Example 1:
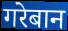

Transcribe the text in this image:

गरेबान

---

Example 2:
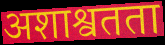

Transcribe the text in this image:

अशाश्वतता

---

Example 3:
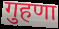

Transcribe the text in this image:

गुहणा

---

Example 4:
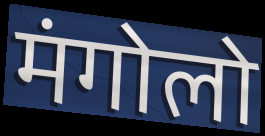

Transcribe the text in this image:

मंगोलो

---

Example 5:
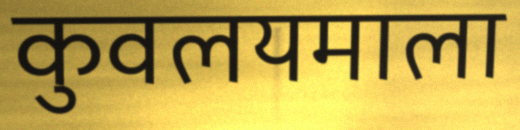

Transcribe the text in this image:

कुवलयमाला